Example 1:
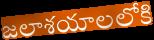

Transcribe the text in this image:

జలాశయాలలోకి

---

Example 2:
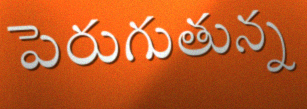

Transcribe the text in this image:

పెరుగుతున్న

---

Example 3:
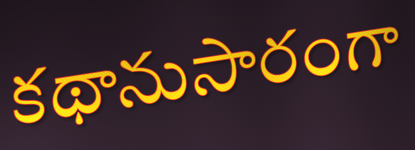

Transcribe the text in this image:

కథానుసారంగా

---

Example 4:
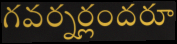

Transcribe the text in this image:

గవర్నర్లందరూ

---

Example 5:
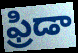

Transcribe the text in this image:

ఫ్రిడా